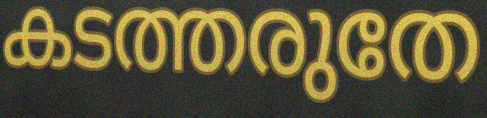
കടത്തരുതേ